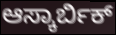
ಆಸ್ಕಾರ್ಬಿಕ್